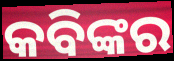
କବିଙ୍କର